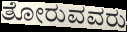
ತೋರುವವರು